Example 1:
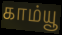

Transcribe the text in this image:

காம்யூ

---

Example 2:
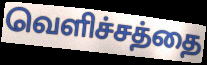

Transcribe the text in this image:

வெளிச்சத்தை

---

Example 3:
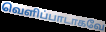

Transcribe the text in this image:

வெளிப்பாடாகவே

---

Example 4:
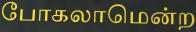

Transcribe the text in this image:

போகலாமென்ற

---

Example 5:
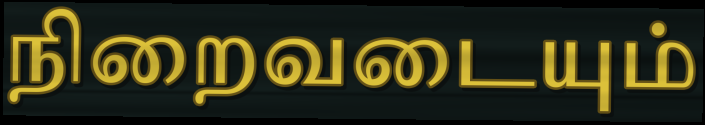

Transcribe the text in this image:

நிறைவடையும்